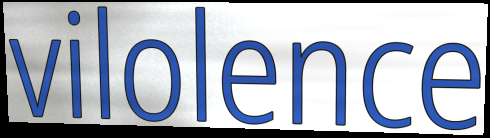
vilolence